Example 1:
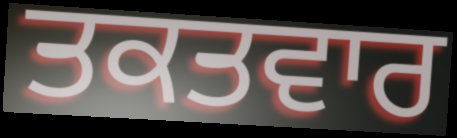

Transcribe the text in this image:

ਤਕਤਵਾਰ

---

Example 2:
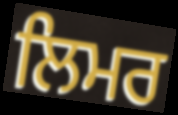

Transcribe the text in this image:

ਲਿਮਰ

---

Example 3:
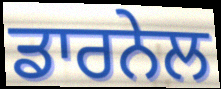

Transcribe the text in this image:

ਡਾਰਨੇਲ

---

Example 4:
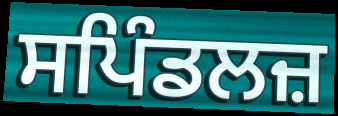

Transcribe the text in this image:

ਸਪਿੰਡਲਜ਼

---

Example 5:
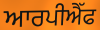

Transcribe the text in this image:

ਆਰਪੀਐੱਫ